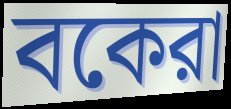
বকেরা